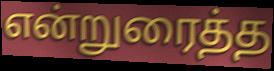
என்றுரைத்த